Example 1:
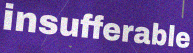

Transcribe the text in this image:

insufferable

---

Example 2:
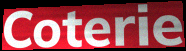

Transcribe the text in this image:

Coterie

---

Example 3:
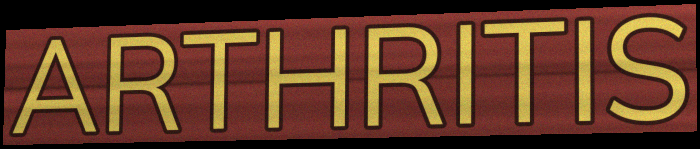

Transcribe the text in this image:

ARTHRITIS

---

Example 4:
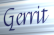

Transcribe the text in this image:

Gerrit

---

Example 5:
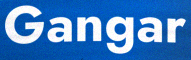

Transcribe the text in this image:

Gangar